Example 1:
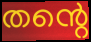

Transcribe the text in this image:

തന്റെ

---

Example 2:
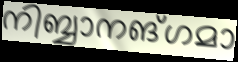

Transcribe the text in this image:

നിബ്ബാനങ്ഗമാ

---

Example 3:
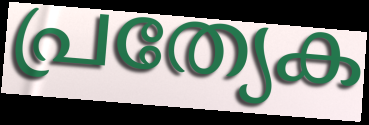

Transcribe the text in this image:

പ്രത്യേക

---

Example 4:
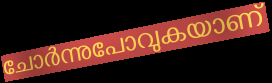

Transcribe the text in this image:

ചോർന്നുപോവുകയാണ്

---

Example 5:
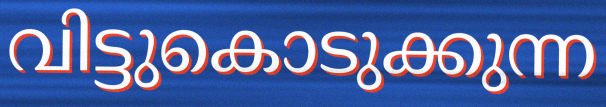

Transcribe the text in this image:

വിട്ടുകൊടുക്കുന്ന